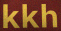
kkh